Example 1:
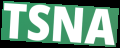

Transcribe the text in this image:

TSNA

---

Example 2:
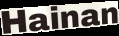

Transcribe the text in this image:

Hainan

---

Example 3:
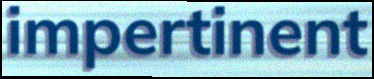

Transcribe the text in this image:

impertinent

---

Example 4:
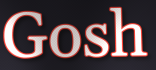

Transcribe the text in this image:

Gosh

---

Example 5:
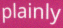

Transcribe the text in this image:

plainly